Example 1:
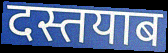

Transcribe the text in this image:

दस्तयाब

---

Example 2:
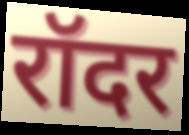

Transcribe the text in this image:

रॉदर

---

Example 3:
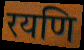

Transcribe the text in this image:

रयणि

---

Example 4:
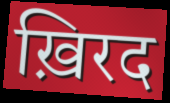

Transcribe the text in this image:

ख़िरद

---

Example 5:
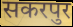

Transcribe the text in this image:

सकरपुर